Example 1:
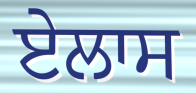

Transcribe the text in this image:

ਏਲਾਸ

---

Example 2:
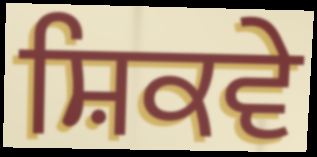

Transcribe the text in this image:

ਸ਼ਿਕਵੇ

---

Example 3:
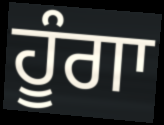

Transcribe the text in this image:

ਹੂੰਗਾ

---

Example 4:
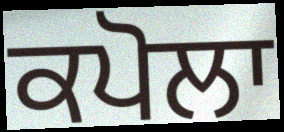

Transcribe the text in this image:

ਕਪੋਲਾ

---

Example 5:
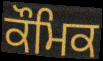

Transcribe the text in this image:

ਕੌਮਿਕ